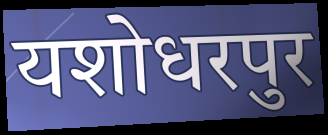
यशोधरपुर